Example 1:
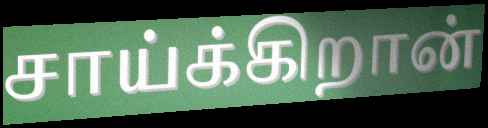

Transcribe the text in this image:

சாய்க்கிறான்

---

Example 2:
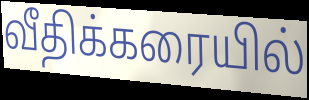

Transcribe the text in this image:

வீதிக்கரையில்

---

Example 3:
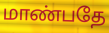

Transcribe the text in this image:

மாண்பதே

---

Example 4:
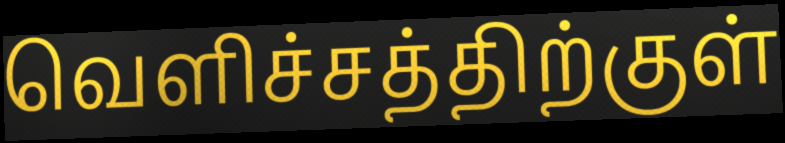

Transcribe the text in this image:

வெளிச்சத்திற்குள்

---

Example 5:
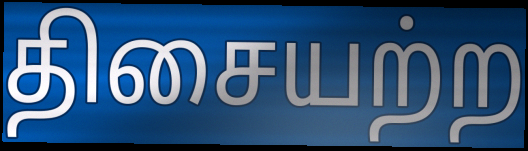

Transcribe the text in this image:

திசையற்ற